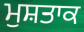
ਮੁਸ਼ਤਾਕ